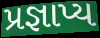
પ્રજ્ઞાપ્ય